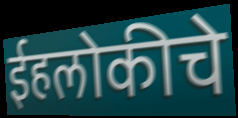
ईहलोकीचे